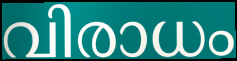
വിരാധം